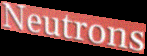
Neutrons